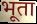
भूता